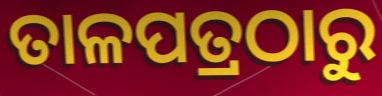
ତାଳପତ୍ରଠାରୁ